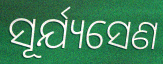
ସୂର୍ଯ୍ୟସେଣ